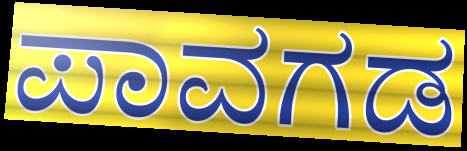
ಪಾವಗಡ